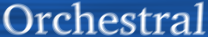
Orchestral